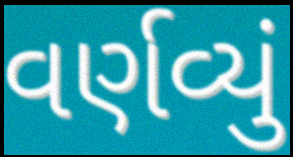
વર્ણવ્યું